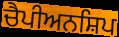
ਚੈਪੀਅਨਸ਼ਿਪ